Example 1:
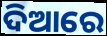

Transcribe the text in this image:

ଦିଆରେ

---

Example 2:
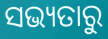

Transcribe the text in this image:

ସଭ୍ୟତାରୁ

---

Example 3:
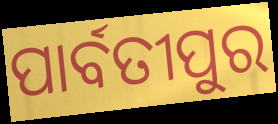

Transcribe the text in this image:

ପାର୍ବତୀପୁର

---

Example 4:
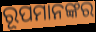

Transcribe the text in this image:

ରୂପମାନଙ୍କର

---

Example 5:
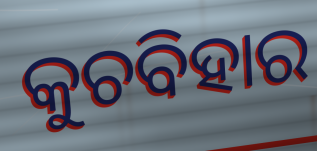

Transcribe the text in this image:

କୁଚବିହାର